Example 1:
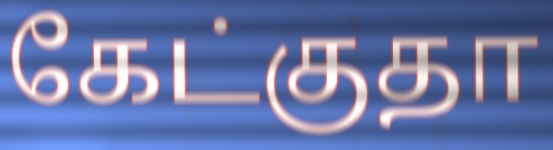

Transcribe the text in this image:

கேட்குதா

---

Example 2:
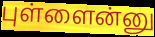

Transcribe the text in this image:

புள்ளைன்னு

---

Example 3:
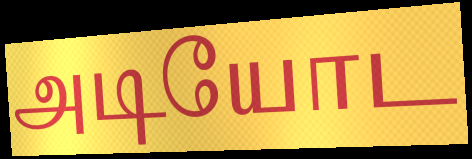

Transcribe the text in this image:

அடியோட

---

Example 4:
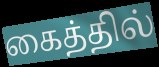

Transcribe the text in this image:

கைத்தில்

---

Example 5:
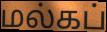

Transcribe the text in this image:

மல்கப்